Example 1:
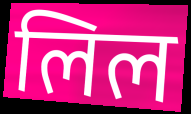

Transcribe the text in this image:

लिल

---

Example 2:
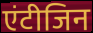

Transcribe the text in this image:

एंटीजिन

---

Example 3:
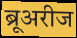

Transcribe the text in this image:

ब्रूअरीज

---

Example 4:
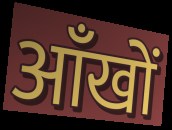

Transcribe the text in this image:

आँखों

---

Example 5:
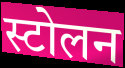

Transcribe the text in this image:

स्टोलन